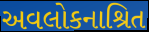
અવલોકનાશ્રિત